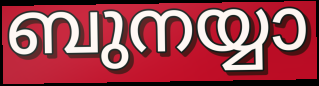
ബുനയ്യാ